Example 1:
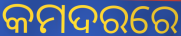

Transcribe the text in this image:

କମଦରରେ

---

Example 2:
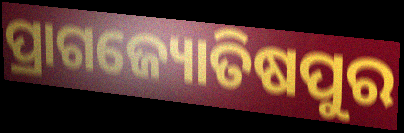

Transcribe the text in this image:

ପ୍ରାଗଜ୍ୟୋତିଷପୁର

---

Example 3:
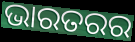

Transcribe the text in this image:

ଭାରତରର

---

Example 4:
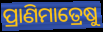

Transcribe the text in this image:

ପ୍ରାଣିମାତ୍ରେଷୁ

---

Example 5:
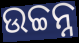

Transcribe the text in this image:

ଉଚ୍ଚନ୍ନ